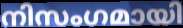
നിസംഗമായി